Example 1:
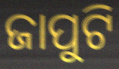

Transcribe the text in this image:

ଜାପୁଟି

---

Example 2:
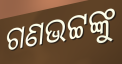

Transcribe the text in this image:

ଗଣଭଟ୍ଟଙ୍କୁ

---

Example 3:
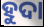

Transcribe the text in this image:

ହୁଦା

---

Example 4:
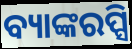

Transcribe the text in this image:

ବ୍ୟାଙ୍କରପ୍ସି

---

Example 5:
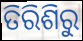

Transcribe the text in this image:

ତିରିଶିରୁ